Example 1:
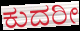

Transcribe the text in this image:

ಕುದರೀ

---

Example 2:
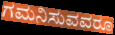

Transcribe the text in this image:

ಗಮನಿಸುವವರೂ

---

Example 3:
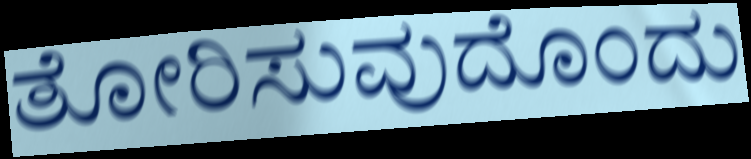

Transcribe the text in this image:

ತೋರಿಸುವುದೊಂದು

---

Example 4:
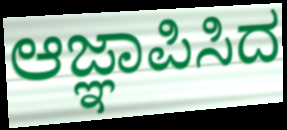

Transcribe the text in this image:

ಆಜ್ಞಾಪಿಸಿದ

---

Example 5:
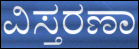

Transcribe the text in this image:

ವಿಸ್ತರಣಾ